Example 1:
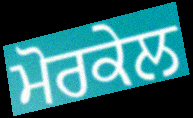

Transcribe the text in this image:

ਮੋਰਕੇਲ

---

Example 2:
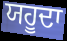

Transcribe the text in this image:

ਯਹੂਦਾ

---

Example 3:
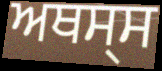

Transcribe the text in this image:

ਅਥਸ੍ਸ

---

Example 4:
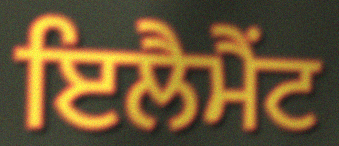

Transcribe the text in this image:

ਇਲੈਮੈਂਟ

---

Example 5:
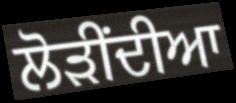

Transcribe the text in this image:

ਲੋੜੀਂਦੀਆ